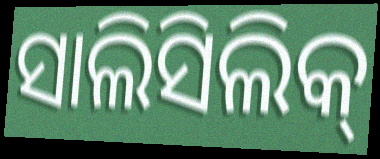
ସାଲିସିଲିକ୍